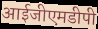
आईजीएमडीपी